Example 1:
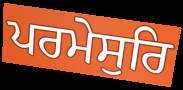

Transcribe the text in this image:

ਪਰਮੇਸੁਰਿ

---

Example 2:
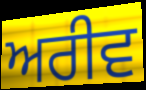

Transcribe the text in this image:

ਅਰੀਵ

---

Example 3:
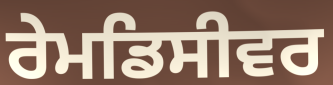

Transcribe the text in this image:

ਰੇਮਡਿਸੀਵਰ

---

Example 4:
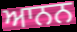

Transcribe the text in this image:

ਆਨਨ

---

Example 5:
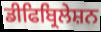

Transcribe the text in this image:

ਡੀਫਿਬ੍ਰਿਲੇਸ਼ਨ